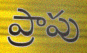
ప్రాపు